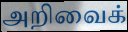
அறிவைக்